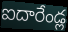
ఐదారేండ్ల